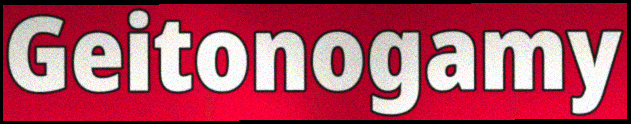
Geitonogamy